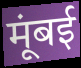
मूंबई